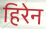
हिरेन